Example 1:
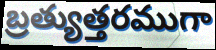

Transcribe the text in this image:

బ్రత్యుత్తరముగా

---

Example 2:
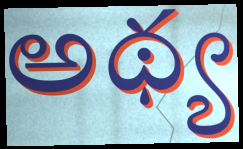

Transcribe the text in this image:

అథ్య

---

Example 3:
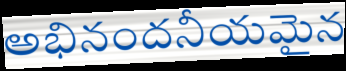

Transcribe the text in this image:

అభినందనీయమైన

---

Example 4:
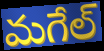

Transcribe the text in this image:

మగేల్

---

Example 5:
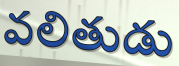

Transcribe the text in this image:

వలితుడు